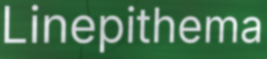
Linepithema